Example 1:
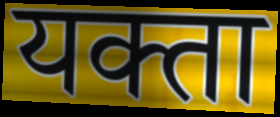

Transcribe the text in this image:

यक्ता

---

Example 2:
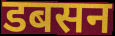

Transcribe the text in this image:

डबसन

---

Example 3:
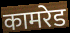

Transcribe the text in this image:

कामरेड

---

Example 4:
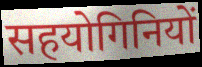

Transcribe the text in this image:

सहयोगिनियों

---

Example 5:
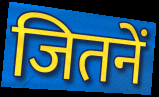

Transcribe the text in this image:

जितनें